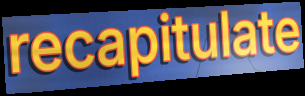
recapitulate